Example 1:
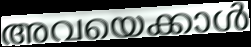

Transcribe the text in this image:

അവയെക്കാൾ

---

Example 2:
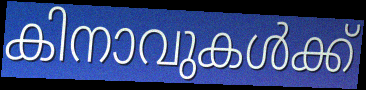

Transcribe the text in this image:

കിനാവുകൾക്ക്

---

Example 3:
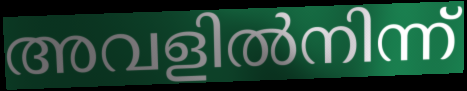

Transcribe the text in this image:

അവളിൽനിന്ന്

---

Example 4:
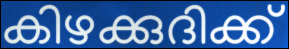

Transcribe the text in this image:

കിഴക്കുദിക്ക്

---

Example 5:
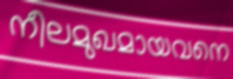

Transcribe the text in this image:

നീലമുഖമായവനെ